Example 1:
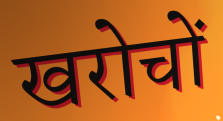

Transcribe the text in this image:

खरोचों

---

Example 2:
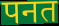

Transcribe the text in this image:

पनत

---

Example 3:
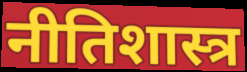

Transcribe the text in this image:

नीतिशास्त्र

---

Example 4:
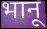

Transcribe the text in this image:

भानू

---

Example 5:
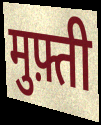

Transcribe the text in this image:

मुफ़्ती